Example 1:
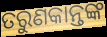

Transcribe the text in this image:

ତରୁଣକାନ୍ତଙ୍କ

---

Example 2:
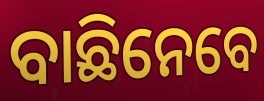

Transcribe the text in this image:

ବାଛିନେବେ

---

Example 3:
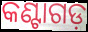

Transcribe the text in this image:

କଣ୍ଟାଗଡ଼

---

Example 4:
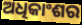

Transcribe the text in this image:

ଅଧିକାଂଶର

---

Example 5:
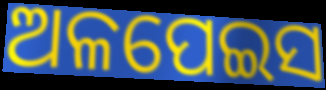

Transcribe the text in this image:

ଅଳପେଇସ